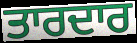
ਤਾਰਦਾਰ